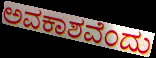
ಅವಕಾಶವೆಂದು